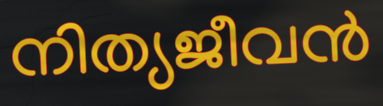
നിത്യജീവൻ